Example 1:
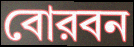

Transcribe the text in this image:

বোরবন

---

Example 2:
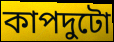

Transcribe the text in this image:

কাপদুটো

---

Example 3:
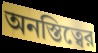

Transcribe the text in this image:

অনস্তিত্বের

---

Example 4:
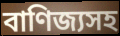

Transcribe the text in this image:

বাণিজ্যসহ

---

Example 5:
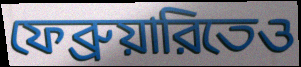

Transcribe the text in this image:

ফেব্রুয়ারিতেও